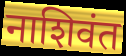
नाशिवंत